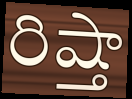
రిష్తా